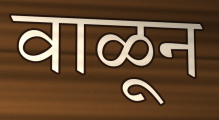
वाळून